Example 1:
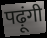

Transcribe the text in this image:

पढ़ूंगी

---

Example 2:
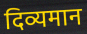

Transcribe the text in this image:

दिव्यमान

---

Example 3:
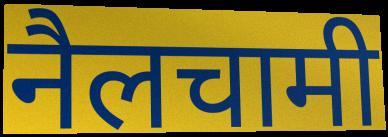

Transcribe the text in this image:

नैलचामी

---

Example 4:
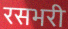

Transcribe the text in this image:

रसभरी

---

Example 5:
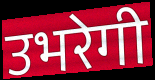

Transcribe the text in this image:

उभरेगी